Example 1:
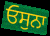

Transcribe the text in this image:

ਓਸੁਨਾ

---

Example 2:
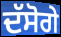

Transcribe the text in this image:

ਦੱਸੋਗੇ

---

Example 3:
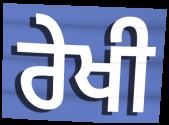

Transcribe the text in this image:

ਰੇਖੀ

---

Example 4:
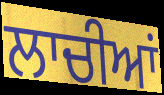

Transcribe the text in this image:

ਲਾਚੀਆਂ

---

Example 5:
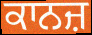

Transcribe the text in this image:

ਕਾਨਜ਼